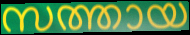
സത്തായ